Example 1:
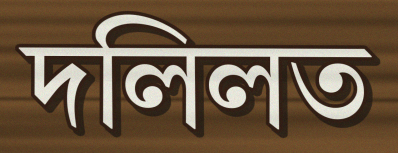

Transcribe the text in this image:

দলিলত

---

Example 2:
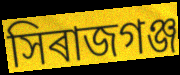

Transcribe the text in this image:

সিৰাজগঞ্জ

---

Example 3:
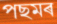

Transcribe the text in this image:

পছমৰ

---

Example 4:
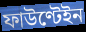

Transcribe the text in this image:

ফাউণ্টেইন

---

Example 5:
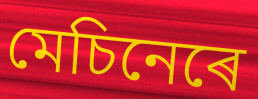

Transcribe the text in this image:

মেচিনেৰে